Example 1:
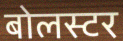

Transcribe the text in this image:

बोलस्टर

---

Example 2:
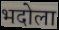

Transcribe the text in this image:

भदोला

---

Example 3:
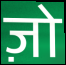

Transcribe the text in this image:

ज़ो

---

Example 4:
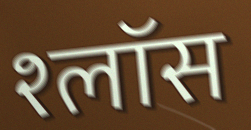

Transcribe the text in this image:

श्लॉस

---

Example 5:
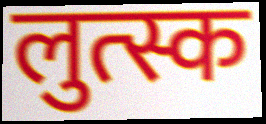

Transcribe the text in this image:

लुत्स्क